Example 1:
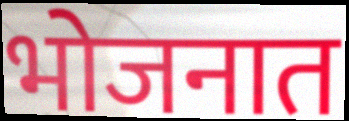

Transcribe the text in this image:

भोजनात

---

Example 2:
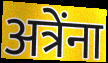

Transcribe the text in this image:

अत्रेंना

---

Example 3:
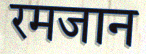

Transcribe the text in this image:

रमजान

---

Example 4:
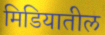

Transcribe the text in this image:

मिडियातील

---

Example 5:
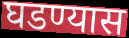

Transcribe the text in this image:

घडण्यास